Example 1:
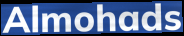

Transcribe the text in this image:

Almohads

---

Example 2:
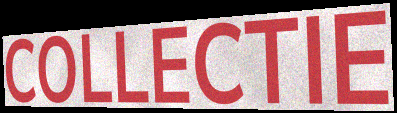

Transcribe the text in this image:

COLLECTIE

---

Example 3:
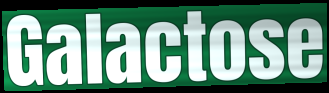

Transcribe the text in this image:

Galactose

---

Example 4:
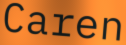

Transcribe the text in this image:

Caren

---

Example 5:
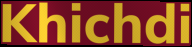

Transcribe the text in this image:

Khichdi